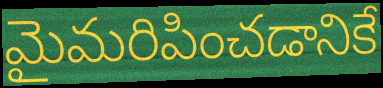
మైమరిపించడానికే